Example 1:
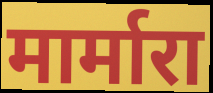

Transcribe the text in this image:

मार्मारा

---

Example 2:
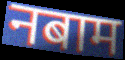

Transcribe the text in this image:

नबाम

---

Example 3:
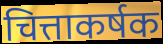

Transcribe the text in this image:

चित्ताकर्षक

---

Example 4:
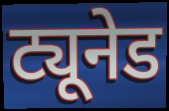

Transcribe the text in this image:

ट्यूनेड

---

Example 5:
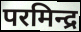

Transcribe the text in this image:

परमिन्द्र